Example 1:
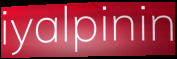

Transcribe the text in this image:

iyalpinin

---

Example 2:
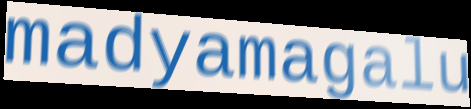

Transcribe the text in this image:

madyamagalu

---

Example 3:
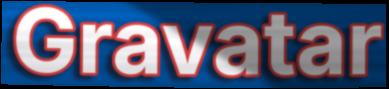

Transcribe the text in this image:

Gravatar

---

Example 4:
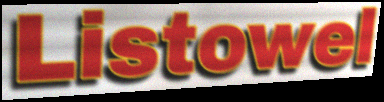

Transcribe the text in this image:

Listowel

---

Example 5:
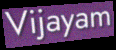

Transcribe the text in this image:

Vijayam